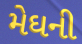
મેઘની